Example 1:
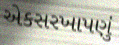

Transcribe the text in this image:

એકસરખાપણું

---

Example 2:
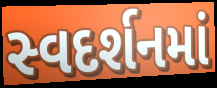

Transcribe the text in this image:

સ્વદર્શનમાં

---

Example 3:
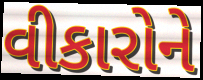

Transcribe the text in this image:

વીકારોને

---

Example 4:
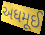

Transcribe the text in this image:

અધમૂઈ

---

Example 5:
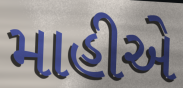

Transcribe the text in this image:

માહીએ